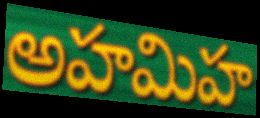
అహమిహ